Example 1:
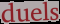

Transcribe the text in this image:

duels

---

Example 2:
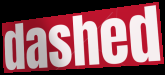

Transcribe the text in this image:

dashed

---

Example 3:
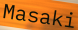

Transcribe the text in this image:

Masaki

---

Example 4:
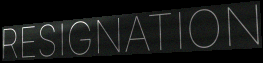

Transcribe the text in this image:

RESIGNATION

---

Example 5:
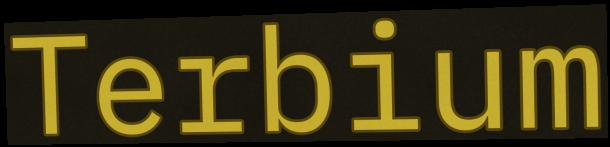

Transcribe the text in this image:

Terbium